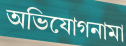
অভিযোগনামা